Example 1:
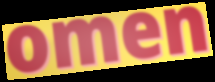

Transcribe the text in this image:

omen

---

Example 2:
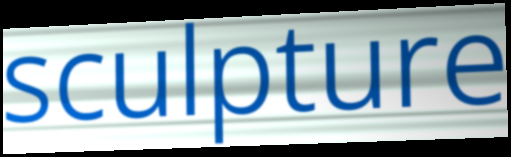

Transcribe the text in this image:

sculpture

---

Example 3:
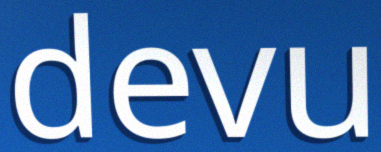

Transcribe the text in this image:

devu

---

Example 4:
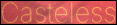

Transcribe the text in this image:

Casteless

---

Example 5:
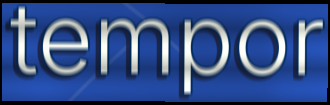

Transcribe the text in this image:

tempor